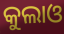
କୁଲାଓ